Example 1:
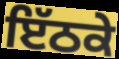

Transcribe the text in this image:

ਇੱਠਕੇ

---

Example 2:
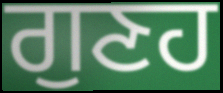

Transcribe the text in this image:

ਗੁਣਹ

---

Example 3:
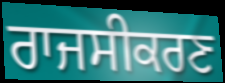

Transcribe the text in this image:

ਰਾਜਸੀਕਰਣ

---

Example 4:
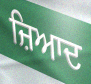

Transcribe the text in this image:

ਜ਼ਿਆਦ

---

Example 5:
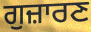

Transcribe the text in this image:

ਗੁਜ਼ਾਰਣ